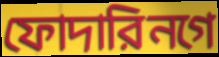
ফোদারিনগে